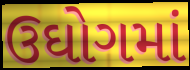
ઉઘોગમાં